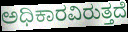
ಅಧಿಕಾರವಿರುತ್ತದೆ